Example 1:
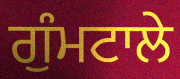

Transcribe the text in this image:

ਗੁੰਮਟਾਲੇ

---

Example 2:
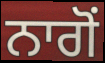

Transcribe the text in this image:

ਨਾਗੋਂ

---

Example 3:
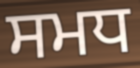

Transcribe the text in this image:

ਸਮਧ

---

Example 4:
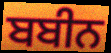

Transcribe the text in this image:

ਬਬੀਨ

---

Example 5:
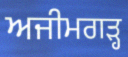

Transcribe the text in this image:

ਅਜੀਮਗੜ੍ਹ